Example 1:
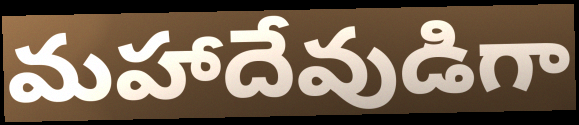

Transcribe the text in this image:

మహాదేవుడిగా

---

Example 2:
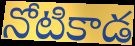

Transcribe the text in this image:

నోటికాడ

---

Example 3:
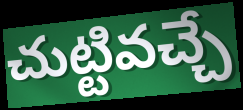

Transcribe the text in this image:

చుట్టివచ్చే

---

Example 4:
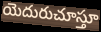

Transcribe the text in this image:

యెదురుచూస్తూ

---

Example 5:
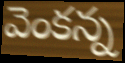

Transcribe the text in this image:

వెంకన్న